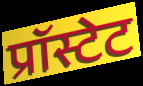
प्रॉस्टेट